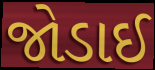
જોડાઈ